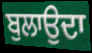
ਬੁਲਾਉਦਾ